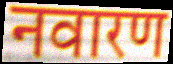
नवारण